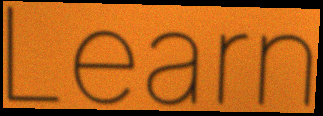
Learn